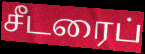
சீடரைப்